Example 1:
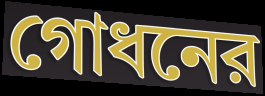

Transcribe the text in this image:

গোধনের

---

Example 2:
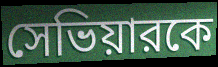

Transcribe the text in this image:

সেভিয়ারকে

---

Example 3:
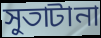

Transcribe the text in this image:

সুতাটানা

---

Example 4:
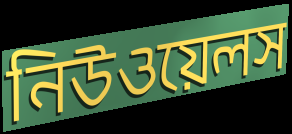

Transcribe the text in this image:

নিউওয়েলস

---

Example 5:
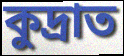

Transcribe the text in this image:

কুদ্রাত